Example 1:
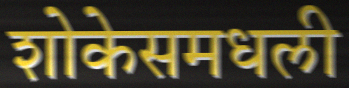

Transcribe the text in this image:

शोकेसमधली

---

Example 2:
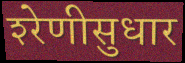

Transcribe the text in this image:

श्रेणीसुधार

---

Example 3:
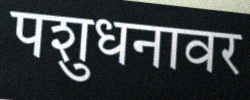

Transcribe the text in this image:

पशुधनावर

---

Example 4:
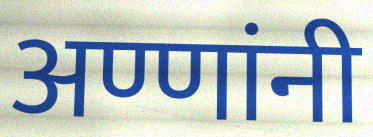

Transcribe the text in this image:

अण्णांनी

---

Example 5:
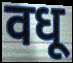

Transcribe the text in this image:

वधू